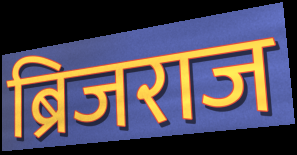
ब्रिजराज